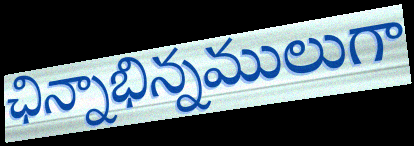
ఛిన్నాభిన్నములుగా